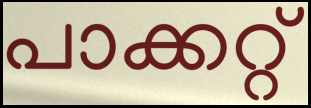
പാക്കറ്റ്